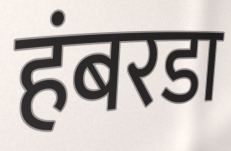
हंबरडा